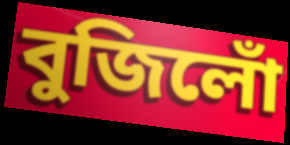
বুজিলোঁ